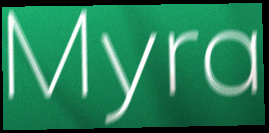
Myra